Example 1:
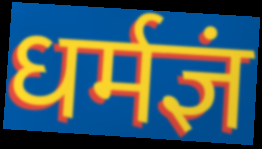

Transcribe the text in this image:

धर्मज्ञं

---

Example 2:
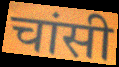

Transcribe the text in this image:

चांसी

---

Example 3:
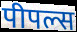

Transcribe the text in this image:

पीपल्स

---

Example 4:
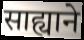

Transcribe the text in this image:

साह्याने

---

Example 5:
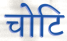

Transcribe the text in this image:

चोटि